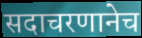
सदाचरणानेच